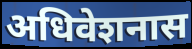
अधिवेशनास